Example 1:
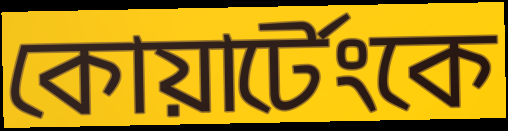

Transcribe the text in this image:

কোয়ার্টেংকে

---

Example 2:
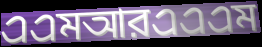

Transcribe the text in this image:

এএমআরএএএম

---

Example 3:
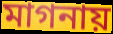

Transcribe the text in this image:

মাগনায়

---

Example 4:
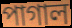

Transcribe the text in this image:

পাগাল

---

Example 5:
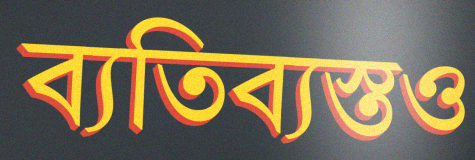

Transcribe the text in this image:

ব্যতিব্যস্তও